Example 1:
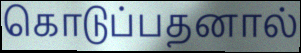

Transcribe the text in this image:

கொடுப்பதனால்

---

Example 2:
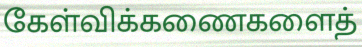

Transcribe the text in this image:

கேள்விக்கணைகளைத்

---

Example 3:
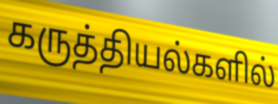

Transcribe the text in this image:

கருத்தியல்களில்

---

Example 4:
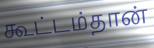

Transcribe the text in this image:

கூட்டம்தான்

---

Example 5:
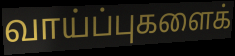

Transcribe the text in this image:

வாய்ப்புகளைக்